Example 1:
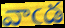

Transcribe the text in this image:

వాఁడ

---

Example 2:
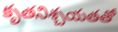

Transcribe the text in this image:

కృతనిశ్చయతతో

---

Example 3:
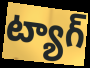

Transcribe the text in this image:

ట్యాగ్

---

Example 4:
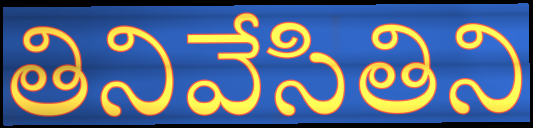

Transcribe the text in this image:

తినివేసితిని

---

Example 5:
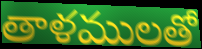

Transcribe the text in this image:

తాళములతో